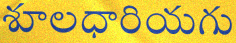
శూలధారియగు